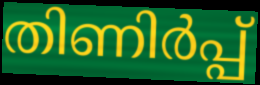
തിണിർപ്പ്